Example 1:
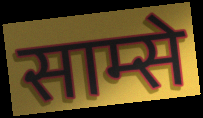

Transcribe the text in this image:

साम्से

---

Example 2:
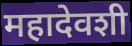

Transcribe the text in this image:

महादेवशी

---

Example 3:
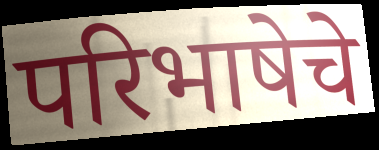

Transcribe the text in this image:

परिभाषेचे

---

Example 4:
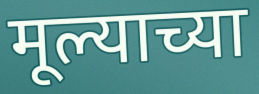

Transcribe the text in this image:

मूल्याच्या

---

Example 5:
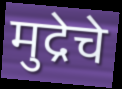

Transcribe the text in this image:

मुद्रेचे